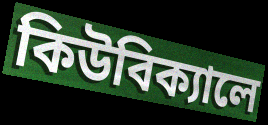
কিউবিক্যালে